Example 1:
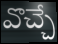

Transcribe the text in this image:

వొచ్చే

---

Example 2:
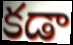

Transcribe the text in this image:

కడా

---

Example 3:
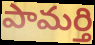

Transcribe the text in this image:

పామర్తి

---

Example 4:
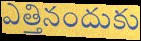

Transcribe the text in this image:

ఎత్తినందుకు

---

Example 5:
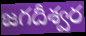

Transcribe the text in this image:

జగదీశ్వర